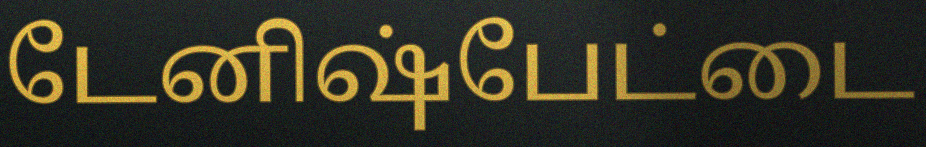
டேனிஷ்பேட்டை